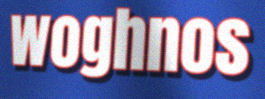
woghnos